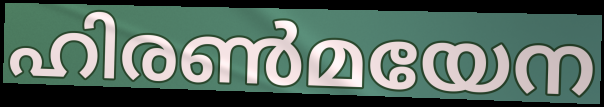
ഹിരൺമയേന